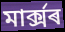
মাৰ্ক্সৰ